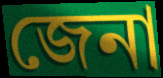
জেনা